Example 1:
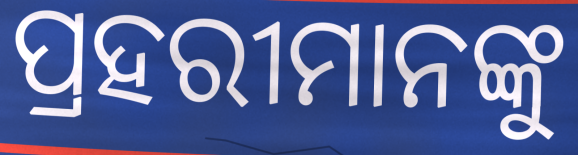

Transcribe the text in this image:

ପ୍ରହରୀମାନଙ୍କୁ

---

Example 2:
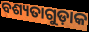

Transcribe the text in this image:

ବଶ୍ୟତାଗୁଡ଼ାକ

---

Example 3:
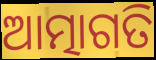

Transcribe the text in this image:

ଆତ୍ମାଗତି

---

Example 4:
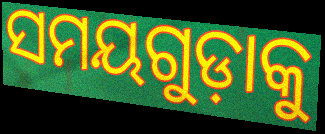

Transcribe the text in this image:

ସମୟଗୁଡ଼ାକୁ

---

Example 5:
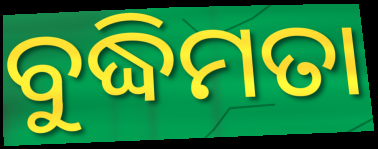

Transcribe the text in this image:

ବୁଦ୍ଧିମତା